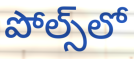
పోల్స్‌లో